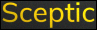
Sceptic